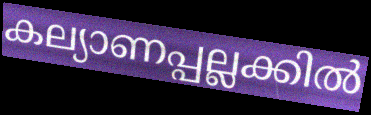
കല്യാണപ്പല്ലക്കിൽ